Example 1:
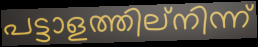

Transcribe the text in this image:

പട്ടാളത്തില്നിന്ന്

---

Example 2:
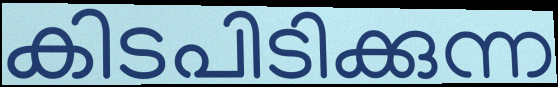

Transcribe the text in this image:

കിടപിടിക്കുന്ന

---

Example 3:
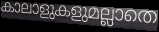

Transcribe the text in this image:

കാലാളുകളുമല്ലാതെ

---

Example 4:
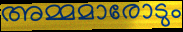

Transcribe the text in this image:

അമ്മമാരോടും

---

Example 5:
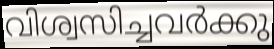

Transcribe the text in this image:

വിശ്വസിച്ചവർക്കു